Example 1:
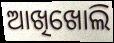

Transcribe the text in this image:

ଆଖିଖୋଲି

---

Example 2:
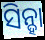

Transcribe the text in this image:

ସିନ୍ହା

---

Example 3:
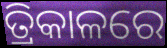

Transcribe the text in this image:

ତ୍ରିକାଳରେ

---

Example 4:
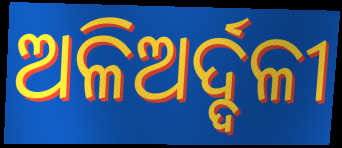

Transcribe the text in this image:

ଅଳିଅର୍ଦ୍ଦଳୀ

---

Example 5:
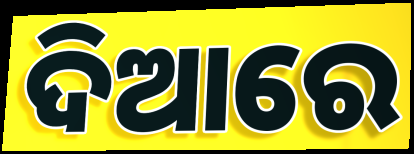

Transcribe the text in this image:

ଦିଆରେ